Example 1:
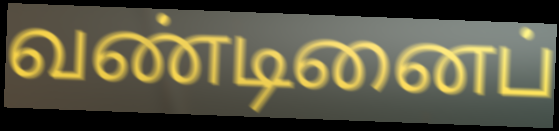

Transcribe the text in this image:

வண்டினைப்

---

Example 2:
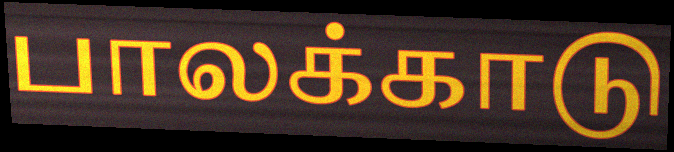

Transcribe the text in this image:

பாலக்காடு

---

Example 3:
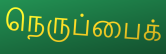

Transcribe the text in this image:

நெருப்பைக்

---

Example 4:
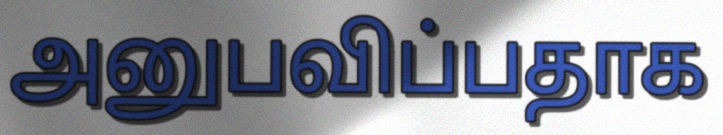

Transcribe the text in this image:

அனுபவிப்பதாக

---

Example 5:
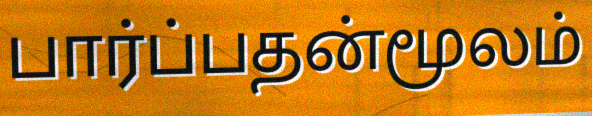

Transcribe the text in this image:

பார்ப்பதன்மூலம்